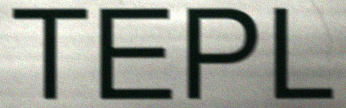
TEPL